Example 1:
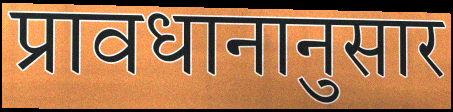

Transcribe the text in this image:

प्रावधानानुसार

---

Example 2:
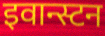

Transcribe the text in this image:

इवान्स्टन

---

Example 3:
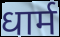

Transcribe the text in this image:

धार्म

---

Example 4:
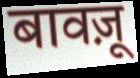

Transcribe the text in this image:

बावज़ू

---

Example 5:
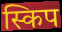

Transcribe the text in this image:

स्किप